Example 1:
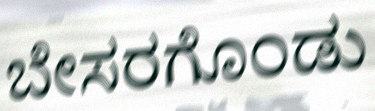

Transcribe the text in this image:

ಬೇಸರಗೊಂಡು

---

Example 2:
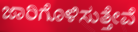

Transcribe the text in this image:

ಜಾರಿಗೊಳಿಸುತ್ತೇವೆ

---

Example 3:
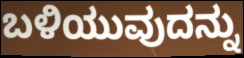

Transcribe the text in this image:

ಬಳಿಯುವುದನ್ನು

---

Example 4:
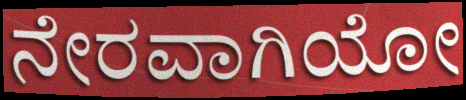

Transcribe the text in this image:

ನೇರವಾಗಿಯೋ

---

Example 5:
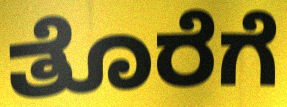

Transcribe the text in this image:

ತೊರೆಗೆ